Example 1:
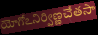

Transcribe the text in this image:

యోగోఽనిర్విణ్ణచేతసా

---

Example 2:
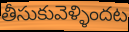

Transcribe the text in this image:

తీసుకువెళ్ళిందట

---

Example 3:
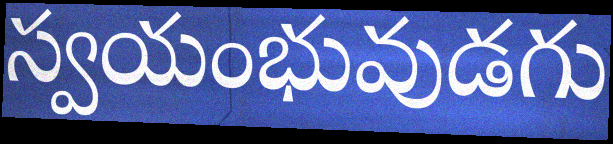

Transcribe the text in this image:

స్వయంభువుడగు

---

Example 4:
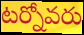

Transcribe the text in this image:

టర్నోవరు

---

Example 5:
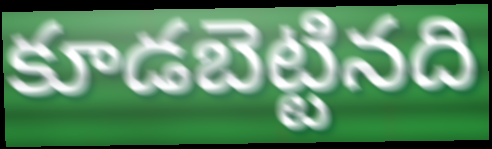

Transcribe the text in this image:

కూడబెట్టినది